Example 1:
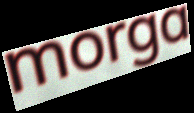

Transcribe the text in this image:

morga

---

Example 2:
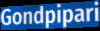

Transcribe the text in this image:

Gondpipari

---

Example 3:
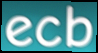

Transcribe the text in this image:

ecb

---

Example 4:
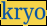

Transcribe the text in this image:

kryo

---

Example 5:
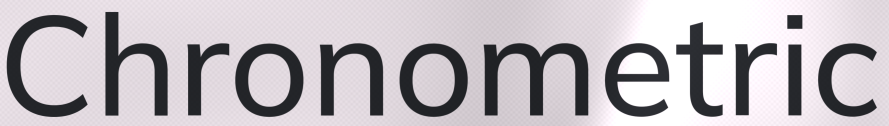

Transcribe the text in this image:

Chronometric